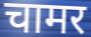
चामर